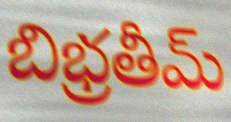
బిభ్రతీమ్